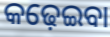
କଢ଼େଇବା